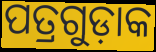
ପତ୍ରଗୁଡ଼ାକ